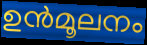
ഉൻമൂലനം